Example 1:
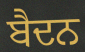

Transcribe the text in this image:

ਬੈਦਨ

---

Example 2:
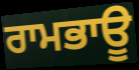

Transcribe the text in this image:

ਰਾਮਭਾਊ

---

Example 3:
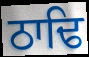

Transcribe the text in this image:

ਠਾਢਿ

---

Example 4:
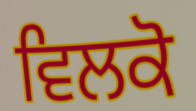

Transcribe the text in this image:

ਵਿਲਕੋ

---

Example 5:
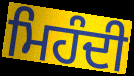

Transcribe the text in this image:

ਮਿਹੰਦੀ